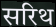
सरिथ